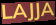
LAJJA